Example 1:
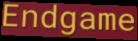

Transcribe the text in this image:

Endgame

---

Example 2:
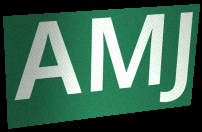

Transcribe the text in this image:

AMJ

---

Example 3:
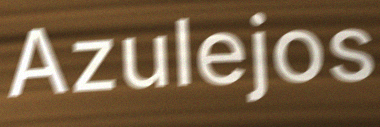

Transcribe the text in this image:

Azulejos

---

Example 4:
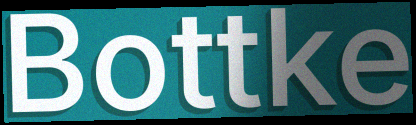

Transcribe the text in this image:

Bottke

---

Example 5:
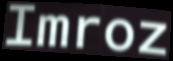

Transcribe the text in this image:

Imroz